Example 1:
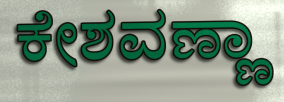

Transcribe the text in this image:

ಕೇಶವಣ್ಣಾ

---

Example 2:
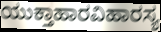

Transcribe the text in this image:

ಯುಕ್ತಾಹಾರವಿಹಾರಸ್ಯ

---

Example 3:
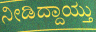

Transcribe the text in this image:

ನೀಡಿದ್ದಾಯ್ತು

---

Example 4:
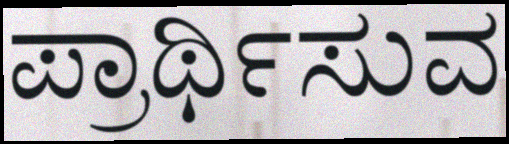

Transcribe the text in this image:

ಪ್ರಾರ್ಥಿಸುವ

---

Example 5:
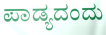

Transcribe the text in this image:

ಪಾಡ್ಯದಂದು